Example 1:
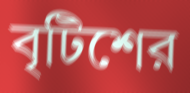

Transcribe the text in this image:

বৃটিশের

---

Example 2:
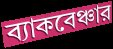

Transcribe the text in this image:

ব্যাকবেঞ্চার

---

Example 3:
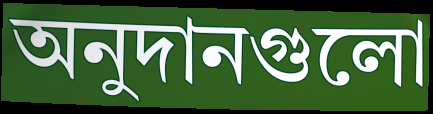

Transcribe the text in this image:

অনুদানগুলো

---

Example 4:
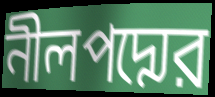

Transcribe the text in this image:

নীলপদ্মের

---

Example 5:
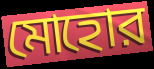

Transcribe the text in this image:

মোহোর